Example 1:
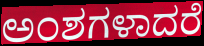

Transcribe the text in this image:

ಅಂಶಗಳಾದರೆ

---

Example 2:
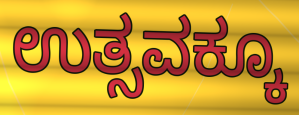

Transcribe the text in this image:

ಉತ್ಸವಕ್ಕೂ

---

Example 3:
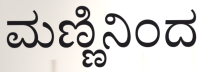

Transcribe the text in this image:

ಮಣ್ಣಿನಿಂದ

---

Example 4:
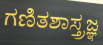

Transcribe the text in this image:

ಗಣಿತಶಾಸ್ತ್ರಜ್ಞ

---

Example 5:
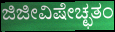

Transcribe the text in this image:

ಜಿಜೀವಿಷೇಚ್ಛತಂ